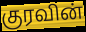
குரவின்